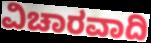
ವಿಚಾರವಾದಿ